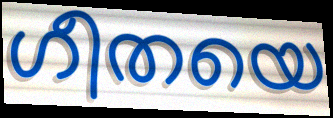
ഗീതയെ